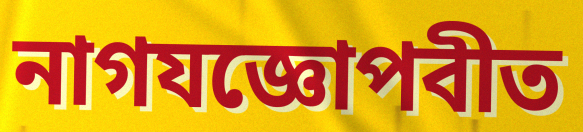
নাগযজ্ঞোপবীত